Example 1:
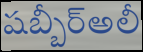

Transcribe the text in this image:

షబ్బీర్అలీ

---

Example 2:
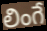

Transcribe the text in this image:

లింగే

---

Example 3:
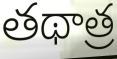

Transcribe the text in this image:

తథాత్ర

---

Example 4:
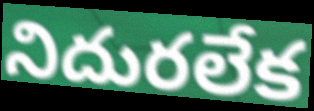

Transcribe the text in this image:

నిదురలేక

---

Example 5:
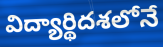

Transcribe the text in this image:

విద్యార్థిదశలోనే